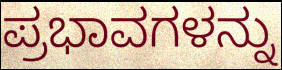
ಪ್ರಭಾವಗಳನ್ನು